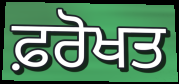
ਫ਼ਰੋਖਤ